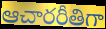
ఆచారరీతిగా